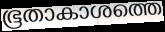
ഭൂതാകാശത്തെ